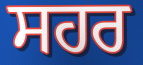
ਸਹਰ